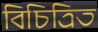
বিচিত্রিত